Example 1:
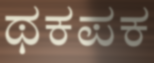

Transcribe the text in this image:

ಥಕಪಕ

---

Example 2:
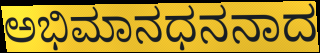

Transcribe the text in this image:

ಅಭಿಮಾನಧನನಾದ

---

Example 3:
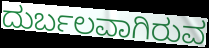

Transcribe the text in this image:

ದುರ್ಬಲವಾಗಿರುವ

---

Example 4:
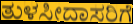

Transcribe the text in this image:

ತುಳಸೀದಾಸರಿಗೆ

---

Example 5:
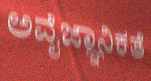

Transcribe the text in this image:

ಅವೈಜ್ಞಾನಿಕತೆ